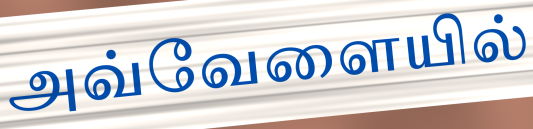
அவ்வேளையில்